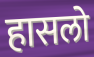
हासलो